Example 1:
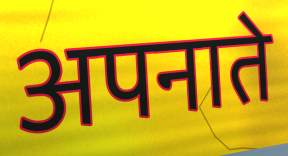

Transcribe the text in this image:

अपनाते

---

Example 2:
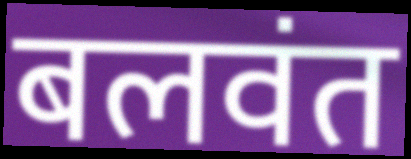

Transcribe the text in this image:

बलवंत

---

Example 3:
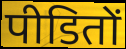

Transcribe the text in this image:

पीडितों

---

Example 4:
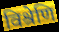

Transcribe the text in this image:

विश्रेणि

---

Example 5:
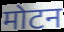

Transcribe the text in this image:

मोटन